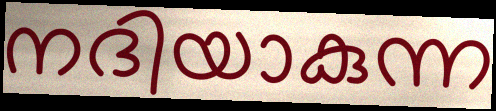
നദിയാകുന്ന